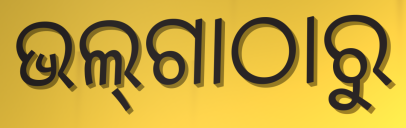
ଭଲ୍‌ଗାଠାରୁ